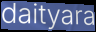
daityara